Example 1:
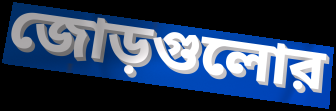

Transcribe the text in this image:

জোড়গুলোর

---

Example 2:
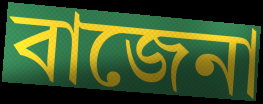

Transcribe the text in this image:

বাজেনা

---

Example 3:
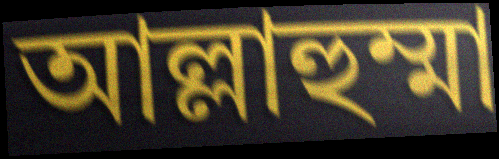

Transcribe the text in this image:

আল্লাহুম্মা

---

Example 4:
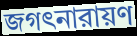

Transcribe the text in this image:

জগৎনারায়ণ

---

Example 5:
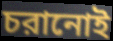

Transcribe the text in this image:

চরানোই